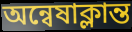
অন্বেষাক্লান্ত